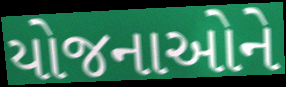
યોજનાઓને